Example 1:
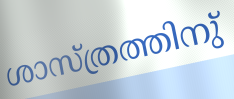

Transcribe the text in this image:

ശാസ്ത്രത്തിനു്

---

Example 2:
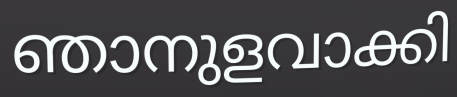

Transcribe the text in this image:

ഞാനുളവാക്കി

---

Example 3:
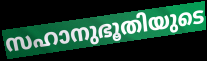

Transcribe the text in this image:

സഹാനുഭൂതിയുടെ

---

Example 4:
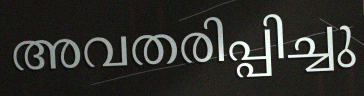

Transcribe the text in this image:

അവതരിപ്പിച്ചു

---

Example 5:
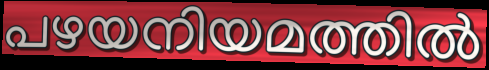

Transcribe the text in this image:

പഴയനിയമത്തിൽ